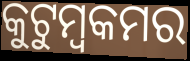
କୁଟୁମ୍ବକମର